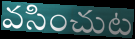
వసించుట